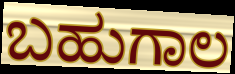
ಬಹುಗಾಲ